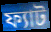
ফ্যাট